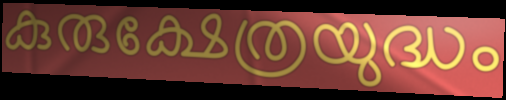
കുരുക്ഷേത്രയുദ്ധം